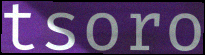
tsoro